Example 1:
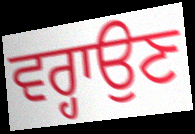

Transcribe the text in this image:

ਵਰ੍ਹਾਉਣ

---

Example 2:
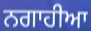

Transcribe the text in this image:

ਨਗਾਹੀਆ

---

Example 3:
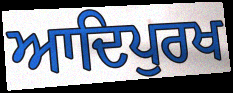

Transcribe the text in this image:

ਆਦਿਪੁਰਖ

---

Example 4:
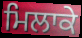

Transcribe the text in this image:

ਮਿਲਾਕੇ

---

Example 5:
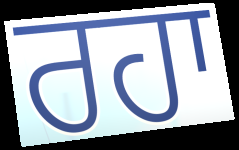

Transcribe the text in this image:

ਰਹਾ